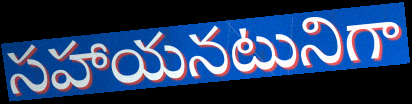
సహాయనటునిగా